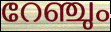
റേഞ്ചും